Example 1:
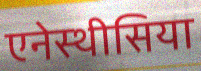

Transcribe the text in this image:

एनेस्थीसिया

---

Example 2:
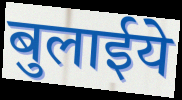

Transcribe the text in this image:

बुलाईये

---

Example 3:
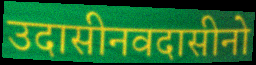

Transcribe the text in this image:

उदासीनवदासीनो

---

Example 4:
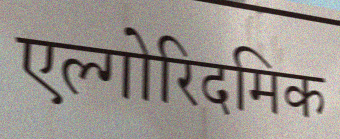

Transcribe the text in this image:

एल्गोरिदमिक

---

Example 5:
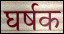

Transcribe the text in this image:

घर्षक